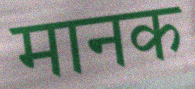
मानक